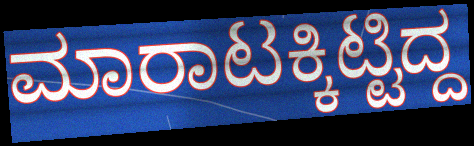
ಮಾರಾಟಕ್ಕಿಟ್ಟಿದ್ದ